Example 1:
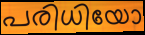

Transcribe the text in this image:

പരിധിയോ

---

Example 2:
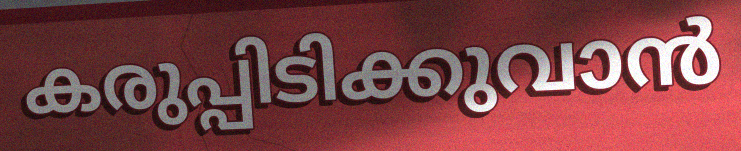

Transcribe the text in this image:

കരുപ്പിടിക്കുവാൻ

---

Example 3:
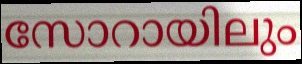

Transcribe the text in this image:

സോറായിലും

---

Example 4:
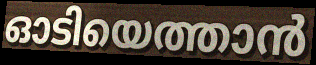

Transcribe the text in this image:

ഓടിയെത്താൻ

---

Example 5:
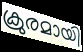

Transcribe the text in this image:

ക്രുരമായി